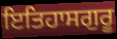
ਇਤਿਹਾਸਗੁਰੂ